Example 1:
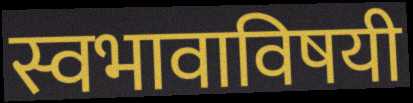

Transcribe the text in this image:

स्वभावाविषयी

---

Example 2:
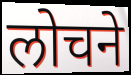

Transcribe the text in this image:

लोचने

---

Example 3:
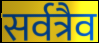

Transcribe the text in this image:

सर्वत्रैव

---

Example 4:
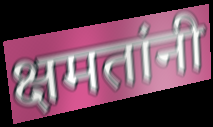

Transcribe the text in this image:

क्षमतांनी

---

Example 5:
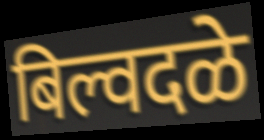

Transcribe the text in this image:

बिल्वदळे